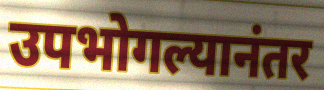
उपभोगल्यानंतर